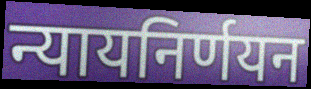
न्यायनिर्णयन